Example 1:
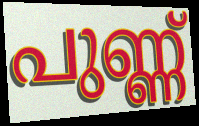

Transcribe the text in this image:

പുണ്ണ്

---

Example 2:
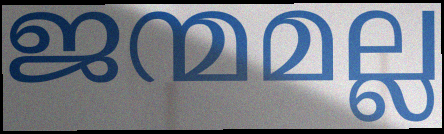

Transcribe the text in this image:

ജന്മമല്ല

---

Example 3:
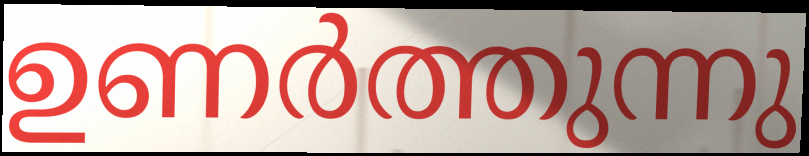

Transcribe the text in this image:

ഉണർത്തുന്നു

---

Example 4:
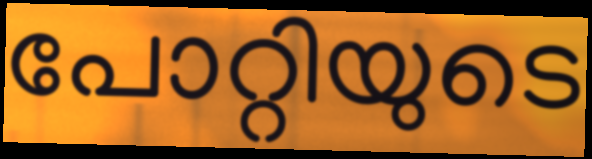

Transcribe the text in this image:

പോറ്റിയുടെ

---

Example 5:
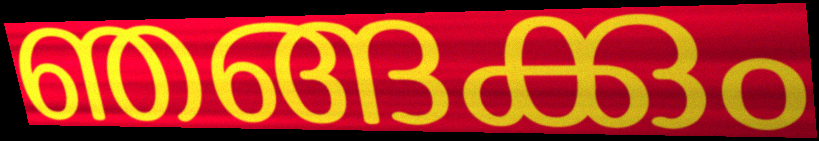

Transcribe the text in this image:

ഞങ്ങക്കും